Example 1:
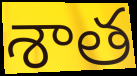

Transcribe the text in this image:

శాత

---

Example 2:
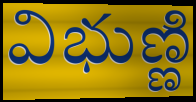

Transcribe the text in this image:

విభుణ్ణి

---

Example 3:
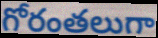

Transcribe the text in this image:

గోరంతలుగా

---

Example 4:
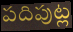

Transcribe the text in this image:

పదిపుట్ల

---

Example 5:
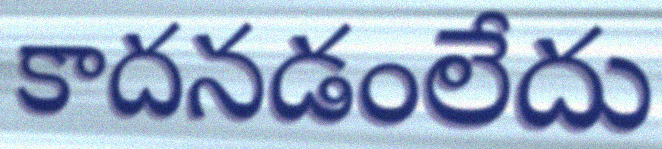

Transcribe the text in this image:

కాదనడంలేదు